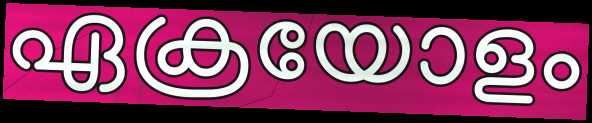
ഏക്രയോളം